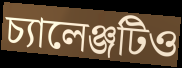
চ্যালেঞ্জটিও